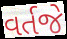
વર્તજે